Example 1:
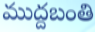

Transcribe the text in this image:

ముద్దబంతి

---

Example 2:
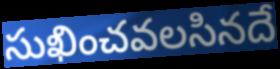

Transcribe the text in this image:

సుఖించవలసినదే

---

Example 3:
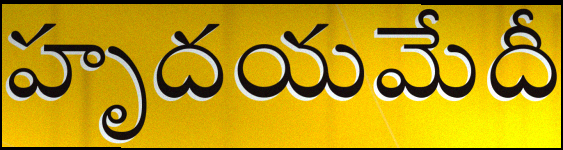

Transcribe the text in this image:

హృదయమేదీ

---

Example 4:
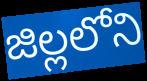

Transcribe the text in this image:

జిల్లలోని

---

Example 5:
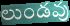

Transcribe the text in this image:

లుండవు